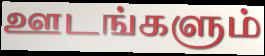
ஊடங்களும்